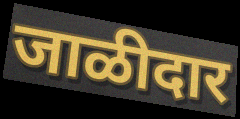
जाळीदार